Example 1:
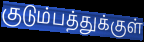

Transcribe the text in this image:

குடும்பத்துக்குள்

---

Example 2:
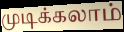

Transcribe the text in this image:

முடிக்கலாம்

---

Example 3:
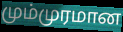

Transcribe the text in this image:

மும்முரமான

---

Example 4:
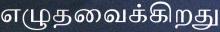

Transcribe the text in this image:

எழுதவைக்கிறது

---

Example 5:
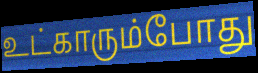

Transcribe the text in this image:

உட்காரும்போது